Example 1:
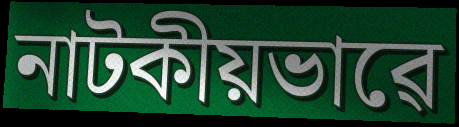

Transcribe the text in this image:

নাটকীয়ভাৱে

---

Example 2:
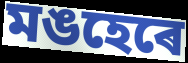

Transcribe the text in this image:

মঙহেৰে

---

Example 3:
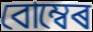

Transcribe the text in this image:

বোম্বেৰ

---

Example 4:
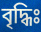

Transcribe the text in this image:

বৃদ্ধিঃ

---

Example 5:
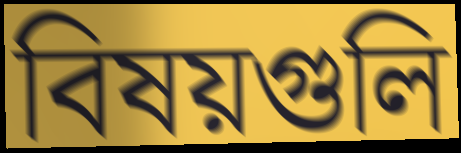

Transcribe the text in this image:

বিষয়গুলি